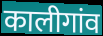
कालीगांव